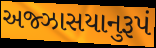
અજ્ઝાસયાનુરૂપં